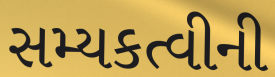
સમ્યકત્વીની